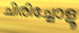
ചിരിച്ചോളൂ